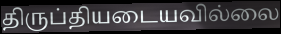
திருப்தியடையவில்லை